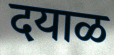
दयाळ